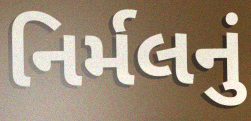
નિર્મલનું